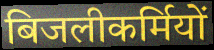
बिजलीकर्मियों